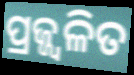
ପ୍ରଜ୍ଜ୍ବଳିତ